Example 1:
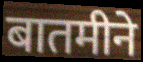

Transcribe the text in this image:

बातमीने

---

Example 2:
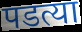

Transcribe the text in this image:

पडत्या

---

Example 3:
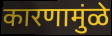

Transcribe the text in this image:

कारणामुंळे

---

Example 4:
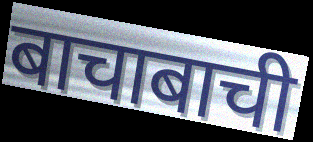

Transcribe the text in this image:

बाचाबाची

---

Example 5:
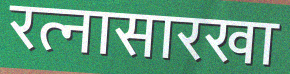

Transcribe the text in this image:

रत्नासारखा